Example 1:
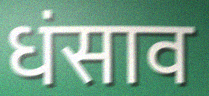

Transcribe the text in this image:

धंसाव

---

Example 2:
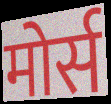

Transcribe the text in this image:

मोर्स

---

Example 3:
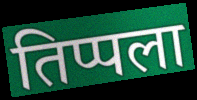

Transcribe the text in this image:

तिप्पला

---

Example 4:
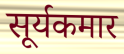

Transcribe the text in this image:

सूर्यकमार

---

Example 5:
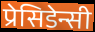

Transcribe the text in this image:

प्रेसिडेन्सी